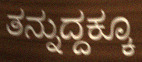
ತನ್ನುದ್ದಕ್ಕೂ